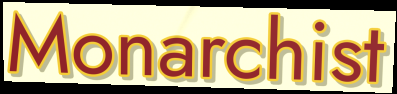
Monarchist